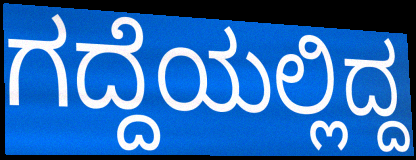
ಗದ್ದೆಯಲ್ಲಿದ್ದ